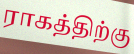
ராகத்திற்கு